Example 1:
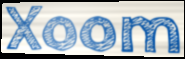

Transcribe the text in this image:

Xoom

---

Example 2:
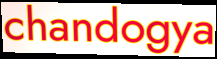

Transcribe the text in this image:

chandogya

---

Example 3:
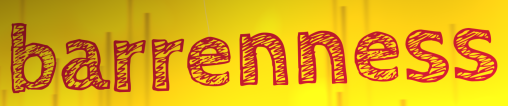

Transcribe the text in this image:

barrenness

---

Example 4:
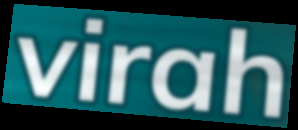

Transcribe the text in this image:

virah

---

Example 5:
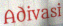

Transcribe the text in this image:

Adivasi